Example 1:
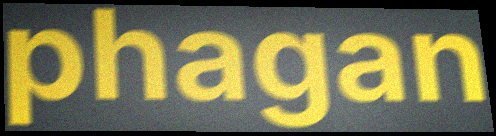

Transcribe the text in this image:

phagan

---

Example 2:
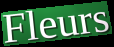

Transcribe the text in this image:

Fleurs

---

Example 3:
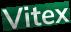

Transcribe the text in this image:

Vitex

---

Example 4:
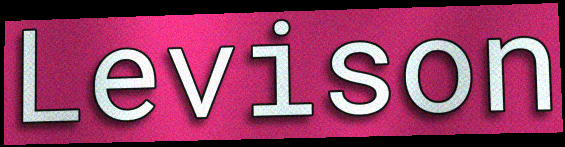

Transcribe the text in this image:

Levison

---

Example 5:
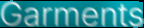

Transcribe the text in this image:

Garments